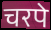
चरपे